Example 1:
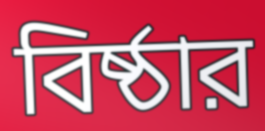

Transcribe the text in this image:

বিষ্ঠার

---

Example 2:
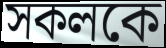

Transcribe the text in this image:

সকলকে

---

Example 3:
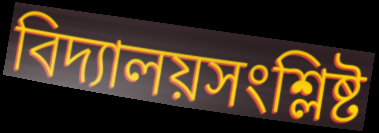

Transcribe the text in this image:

বিদ্যালয়সংশ্লিষ্ট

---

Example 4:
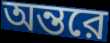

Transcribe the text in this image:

অন্তরে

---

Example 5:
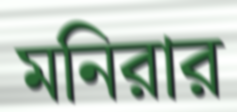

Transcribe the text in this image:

মনিরার